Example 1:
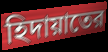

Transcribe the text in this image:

হিদায়াতের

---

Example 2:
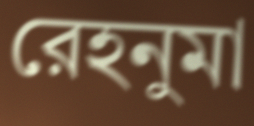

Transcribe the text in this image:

রেহনুমা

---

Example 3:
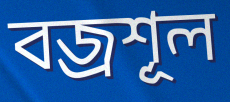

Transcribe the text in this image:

বজ্রশূল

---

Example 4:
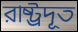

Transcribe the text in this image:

রাষ্ট্রদূত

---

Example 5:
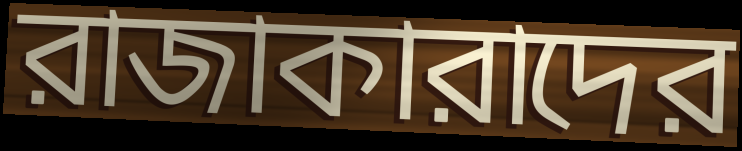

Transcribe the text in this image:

রাজাকারাদের